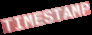
TIMESTAMP